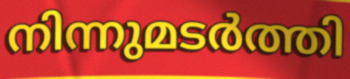
നിന്നുമടർത്തി